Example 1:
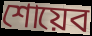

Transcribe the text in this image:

শোয়েব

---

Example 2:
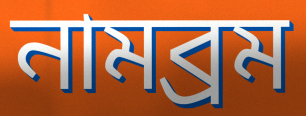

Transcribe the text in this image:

নামব্রম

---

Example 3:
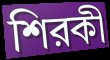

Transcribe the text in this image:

শিরকী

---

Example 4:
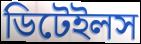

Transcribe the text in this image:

ডিটেইলস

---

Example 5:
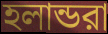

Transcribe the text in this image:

হলান্ডরা